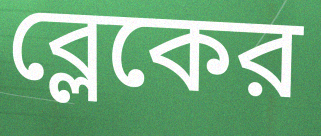
ব্লেকের